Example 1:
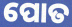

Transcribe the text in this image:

ପୋତ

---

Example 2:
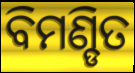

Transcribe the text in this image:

ବିମଣ୍ଡିତ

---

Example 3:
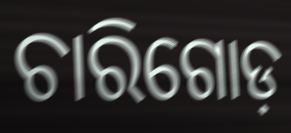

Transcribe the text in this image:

ଚାରିଗୋଡ଼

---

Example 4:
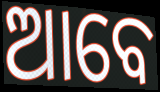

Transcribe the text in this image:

ଆବେ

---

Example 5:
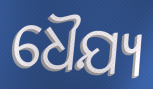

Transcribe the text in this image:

ଧୈଯ୍ୟ